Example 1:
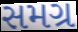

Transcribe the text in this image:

સમગ્ર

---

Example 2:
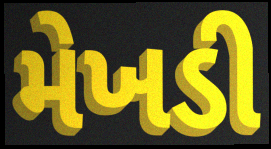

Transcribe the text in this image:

મેખડી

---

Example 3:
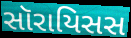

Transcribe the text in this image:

સૉરાયિસસ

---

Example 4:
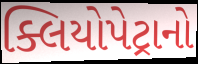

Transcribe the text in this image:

ક્લિયોપેટ્રાનો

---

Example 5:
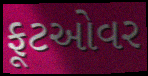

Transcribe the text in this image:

ફૂટઓવર